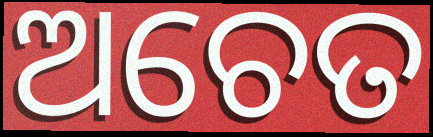
ଅଚେତ